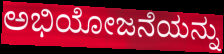
ಅಭಿಯೋಜನೆಯನ್ನು